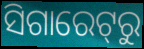
ସିଗାରେଟ୍‌ରୁ